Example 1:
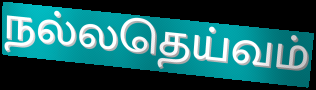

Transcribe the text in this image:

நல்லதெய்வம்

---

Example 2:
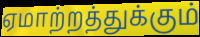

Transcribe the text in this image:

ஏமாற்றத்துக்கும்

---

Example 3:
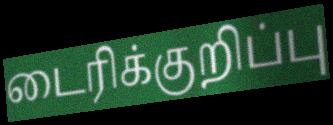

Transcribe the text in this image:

டைரிக்குறிப்பு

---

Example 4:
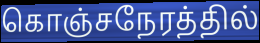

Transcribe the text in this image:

கொஞ்சநேரத்தில்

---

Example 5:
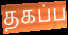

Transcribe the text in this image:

தகப்ப